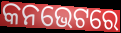
କନଭେଟରେ